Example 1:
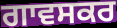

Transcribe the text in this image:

ਗਾਵਸਕਰ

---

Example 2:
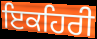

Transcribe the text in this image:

ਇਕਹਿਰੀ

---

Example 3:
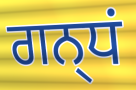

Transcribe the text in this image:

ਗਨ੍ਧਂ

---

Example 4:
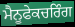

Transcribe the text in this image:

ਮੈਨੂਫੇਕਚਰਿੰਗ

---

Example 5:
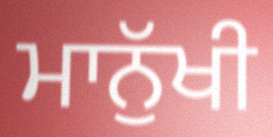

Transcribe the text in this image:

ਮਾਨੁੱਖੀ